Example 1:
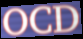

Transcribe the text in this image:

OCD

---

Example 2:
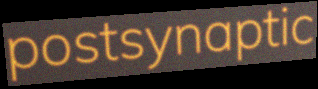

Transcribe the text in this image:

postsynaptic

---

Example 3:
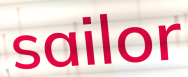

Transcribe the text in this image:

sailor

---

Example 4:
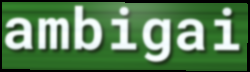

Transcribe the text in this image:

ambigai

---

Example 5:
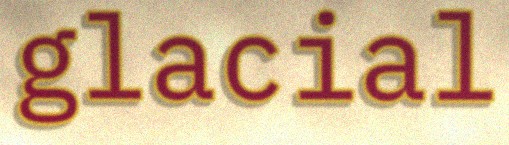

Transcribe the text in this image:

glacial